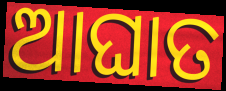
ଆଘାତ